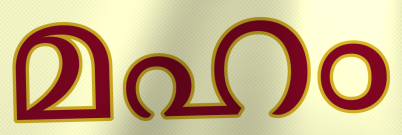
മഹം